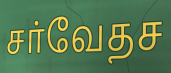
சர்வேதச